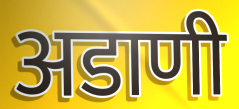
अडाणी